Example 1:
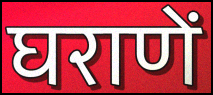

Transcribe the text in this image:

घराणें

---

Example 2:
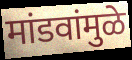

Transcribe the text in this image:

मांडवांमुळे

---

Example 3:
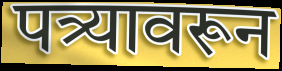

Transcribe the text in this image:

पत्र्यावरून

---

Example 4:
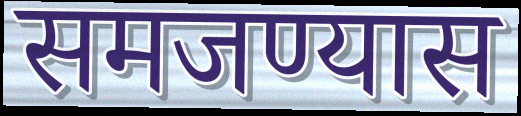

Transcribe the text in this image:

समजण्यास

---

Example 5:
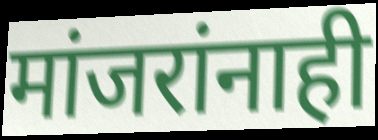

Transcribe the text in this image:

मांजरांनाही